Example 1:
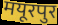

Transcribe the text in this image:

मयूरपुर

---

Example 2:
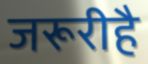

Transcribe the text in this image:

जरूरीहै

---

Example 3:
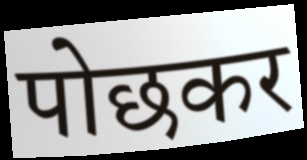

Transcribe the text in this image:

पोछकर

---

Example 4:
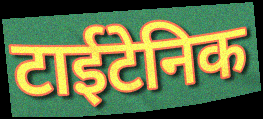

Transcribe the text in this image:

टाईटेनिक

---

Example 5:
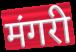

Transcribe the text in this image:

मंगरी